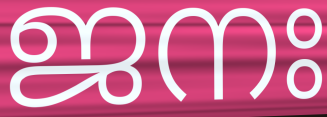
ജനഃ